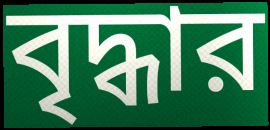
বৃদ্ধার